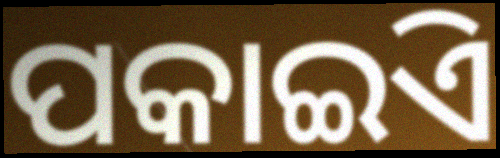
ପକାଇିଏ